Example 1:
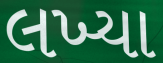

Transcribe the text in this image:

લખ્યા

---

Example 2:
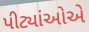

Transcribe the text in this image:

પીટ્યાંઓએ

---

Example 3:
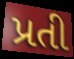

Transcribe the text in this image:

પ્રતી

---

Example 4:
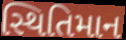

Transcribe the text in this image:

સ્થિતિમાન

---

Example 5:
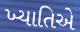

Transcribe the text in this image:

ખ્યાતિએ